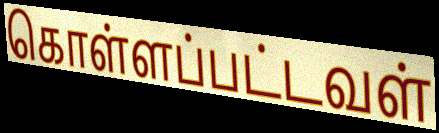
கொள்ளப்பட்டவள்